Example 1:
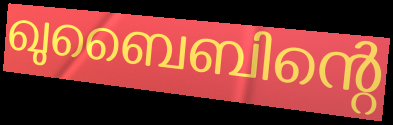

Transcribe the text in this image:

ഖുബൈബിന്റെ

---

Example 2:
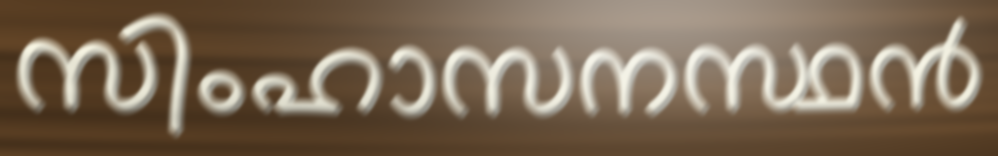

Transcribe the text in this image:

സിംഹാസനസ്ഥൻ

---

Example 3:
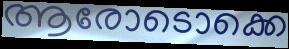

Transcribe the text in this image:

ആരോടൊക്കെ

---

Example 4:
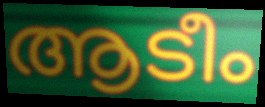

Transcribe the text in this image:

ആടീം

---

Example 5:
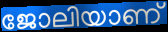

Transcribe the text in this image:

ജോലിയാണ്